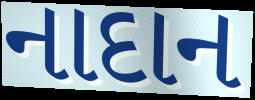
નાદાન